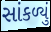
સાંકળ્યું